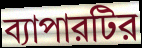
ব্যাপারটির